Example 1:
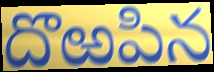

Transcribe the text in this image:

దొఱపిన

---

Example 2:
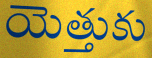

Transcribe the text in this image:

యెత్తుకు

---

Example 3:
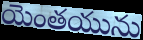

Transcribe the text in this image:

యెంతయును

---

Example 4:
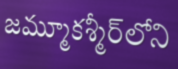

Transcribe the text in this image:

జమ్మూకశ్మీర్‌లోని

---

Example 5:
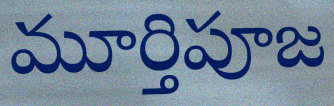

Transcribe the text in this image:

మూర్తిపూజ